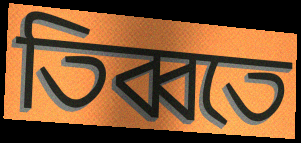
তিব্বতে